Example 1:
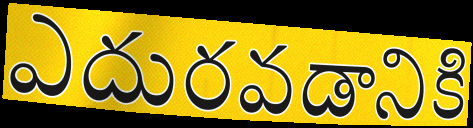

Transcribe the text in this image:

ఎదురవడానికి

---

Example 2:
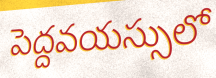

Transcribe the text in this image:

పెద్దవయస్సులో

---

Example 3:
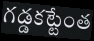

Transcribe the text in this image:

గడ్డకట్టేంత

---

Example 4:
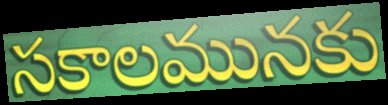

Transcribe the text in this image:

సకాలమునకు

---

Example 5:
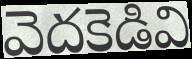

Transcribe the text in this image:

వెదకెడివి